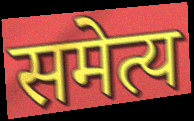
समेत्य